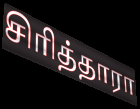
சிரித்தாரா